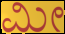
ಮೀ